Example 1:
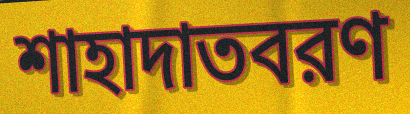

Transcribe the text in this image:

শাহাদাতবরণ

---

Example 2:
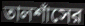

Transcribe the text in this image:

তালশাঁসের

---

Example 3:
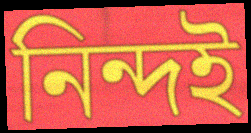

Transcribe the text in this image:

নিন্দই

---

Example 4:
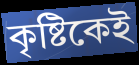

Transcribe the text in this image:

কৃষ্টিকেই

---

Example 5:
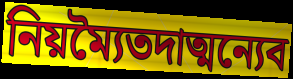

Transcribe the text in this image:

নিয়ম্যৈতদাত্মন্যেব